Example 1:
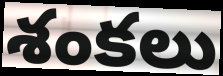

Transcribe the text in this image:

శంకలు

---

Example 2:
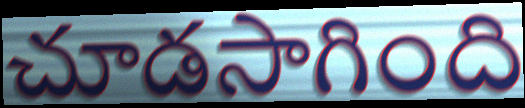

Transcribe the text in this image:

చూడసాగింది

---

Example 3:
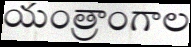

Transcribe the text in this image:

యంత్రాంగాల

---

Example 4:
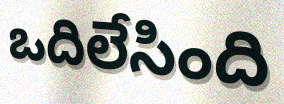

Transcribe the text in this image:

ఒదిలేసింది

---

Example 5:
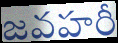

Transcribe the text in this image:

జవహరీ